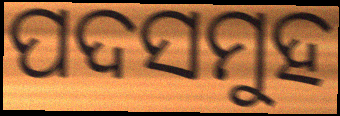
ପଦସମୁହ